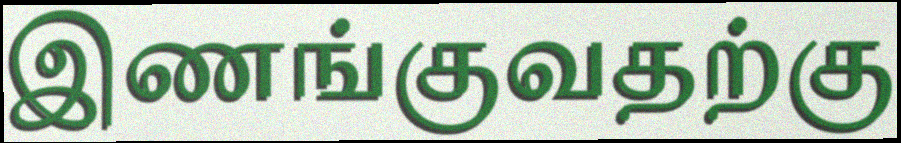
இணங்குவதற்கு